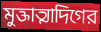
মুক্তাত্মাদিগের